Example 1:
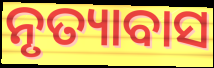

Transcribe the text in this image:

ନୃତ୍ୟାବାସ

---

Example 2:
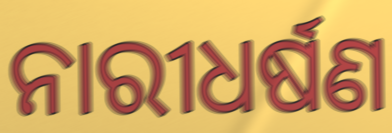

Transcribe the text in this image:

ନାରୀଧର୍ଷଣ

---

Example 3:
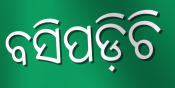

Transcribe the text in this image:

ବସିପଡ଼ିଚି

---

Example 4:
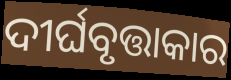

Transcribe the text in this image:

ଦୀର୍ଘବୃତ୍ତାକାର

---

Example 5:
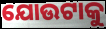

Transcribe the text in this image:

ଯୋଉଟାକୁ